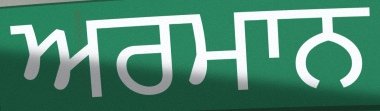
ਅਰਮਾਨ